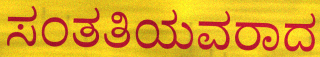
ಸಂತತಿಯವರಾದ